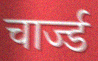
चार्ज्ड